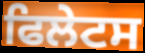
ਫਿਲੇਟਸ